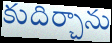
కుదిర్చాను